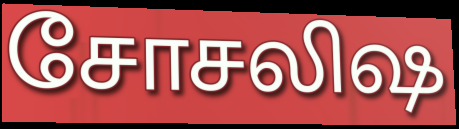
சோசலிஷ